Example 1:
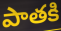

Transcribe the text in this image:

పాతకి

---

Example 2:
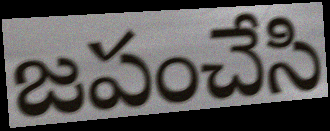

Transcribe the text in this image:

జపంచేసి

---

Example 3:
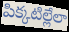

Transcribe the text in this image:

పిక్కటిల్లేలా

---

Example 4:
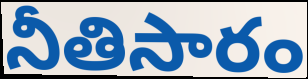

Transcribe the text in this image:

నీతిసారం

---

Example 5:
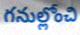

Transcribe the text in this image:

గనుల్లోంచి